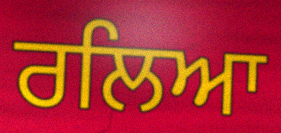
ਰਲਿਆ